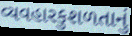
વ્યવહારકુશળતાનું